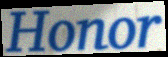
Honor